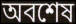
অবশেষ